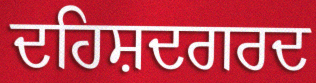
ਦਹਿਸ਼ਦਗਰਦ